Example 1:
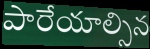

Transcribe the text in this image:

పారేయాల్సిన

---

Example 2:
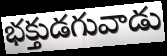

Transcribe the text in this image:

భక్తుడగువాడు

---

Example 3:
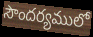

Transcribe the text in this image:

సౌందర్యములో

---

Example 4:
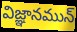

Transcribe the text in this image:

విజ్ఞానమున్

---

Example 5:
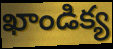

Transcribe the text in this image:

ఖాండిక్య